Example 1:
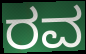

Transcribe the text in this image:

ರವ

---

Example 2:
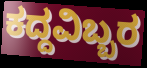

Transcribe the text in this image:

ಕದ್ದವಿಬ್ಬರ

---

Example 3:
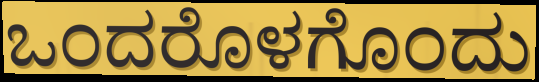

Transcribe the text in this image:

ಒಂದರೊಳಗೊಂದು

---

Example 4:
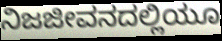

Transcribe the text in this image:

ನಿಜಜೀವನದಲ್ಲಿಯೂ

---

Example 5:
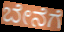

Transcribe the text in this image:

ಬೇನೆಗೆ